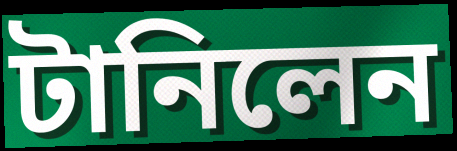
টানিলেন